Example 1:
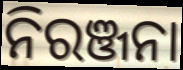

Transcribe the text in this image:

ନିରଞ୍ଜନା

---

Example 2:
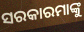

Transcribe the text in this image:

ସରକାରମାଙ୍କୁ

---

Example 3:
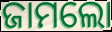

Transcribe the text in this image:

ଜାମଲୋ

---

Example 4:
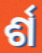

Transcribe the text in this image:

ର୍ଶ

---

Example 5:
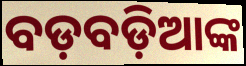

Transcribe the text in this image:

ବଡ଼ବଡ଼ିଆଙ୍କ